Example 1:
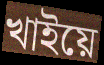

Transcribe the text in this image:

খাইয়ে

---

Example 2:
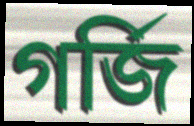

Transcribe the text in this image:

গৰ্জি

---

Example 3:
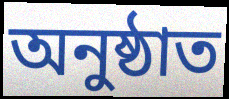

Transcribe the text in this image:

অনুষ্ঠাত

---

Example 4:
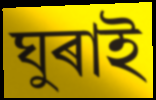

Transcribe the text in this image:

ঘুৰাই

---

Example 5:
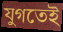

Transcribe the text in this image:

যুগতেই